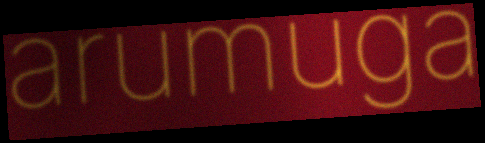
arumuga